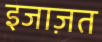
इजाज़त